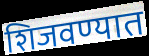
शिजवण्यात